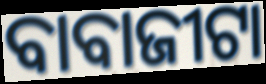
ବାବାଜୀଟା